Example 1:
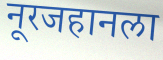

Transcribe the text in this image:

नूरजहानला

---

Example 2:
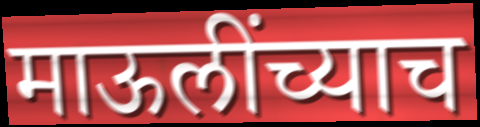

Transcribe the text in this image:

माऊलींच्याच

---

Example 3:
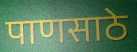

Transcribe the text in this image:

पाणसाठे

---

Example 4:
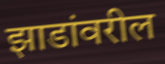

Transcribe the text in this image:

झाडांवरील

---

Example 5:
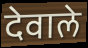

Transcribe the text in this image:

देवाले